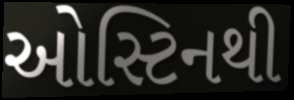
ઓસ્ટિનથી